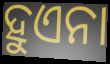
ହୁଏନା